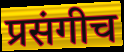
प्रसंगीच